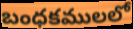
బంధకములలో